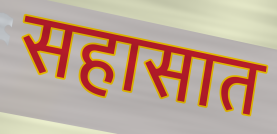
सहासात